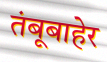
तंबूबाहेर